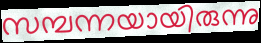
സമ്പന്നയായിരുന്നു